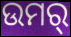
ଉମର୍